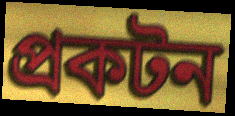
প্রকটন